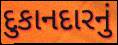
દુકાનદારનું